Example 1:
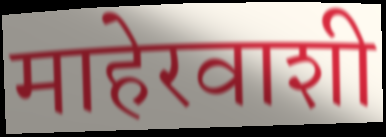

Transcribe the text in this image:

माहेरवाशी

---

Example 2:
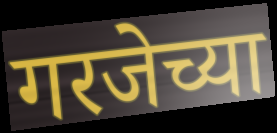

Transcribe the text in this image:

गरजेच्या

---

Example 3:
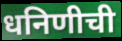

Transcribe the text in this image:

धनिणीची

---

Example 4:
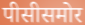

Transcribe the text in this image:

पीसीसमोर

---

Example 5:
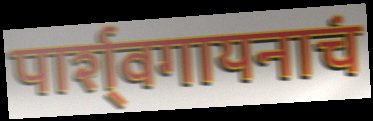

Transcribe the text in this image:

पार्श्वगायनाचं